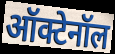
ऑक्टेनॉल